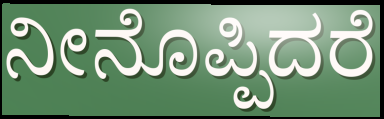
ನೀನೊಪ್ಪಿದರೆ